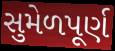
સુમેળપૂર્ણ